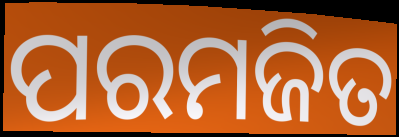
ପରମଜିତ